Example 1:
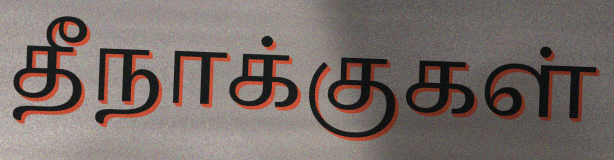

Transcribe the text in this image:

தீநாக்குகள்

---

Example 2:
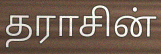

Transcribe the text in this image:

தராசின்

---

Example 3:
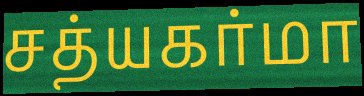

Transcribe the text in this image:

சத்யகர்மா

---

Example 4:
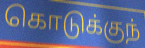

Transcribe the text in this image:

கொடுக்குந்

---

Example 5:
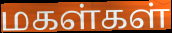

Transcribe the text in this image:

மகள்கள்